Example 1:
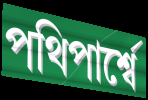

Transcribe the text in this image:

পথিপার্শ্বে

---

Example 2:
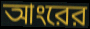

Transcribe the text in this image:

আংরের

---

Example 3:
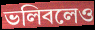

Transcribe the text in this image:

ভলিবলেও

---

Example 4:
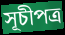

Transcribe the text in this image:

সূচীপত্র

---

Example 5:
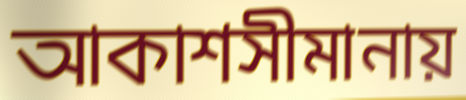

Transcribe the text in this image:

আকাশসীমানায়